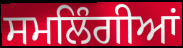
ਸਮਲਿੰਗੀਆਂ